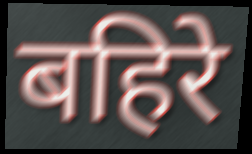
बहिरे